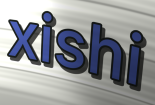
xishi